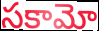
సకామో